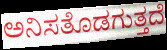
ಅನಿಸತೊಡಗುತ್ತದೆ